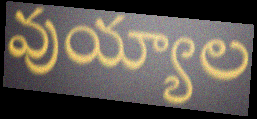
వుయ్యాల